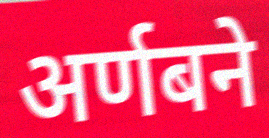
अर्णबने